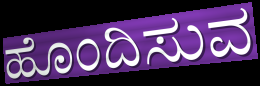
ಹೊಂದಿಸುವ